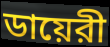
ডায়েরী